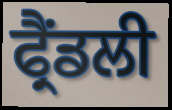
ਫ੍ਰੈਂਡਲੀ